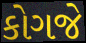
કોગજે